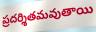
ప్రదర్శితమవుతాయి